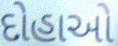
દોહાઓ